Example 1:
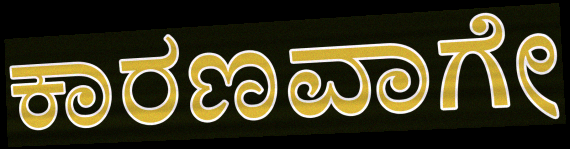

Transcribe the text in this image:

ಕಾರಣವಾಗೇ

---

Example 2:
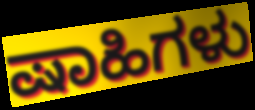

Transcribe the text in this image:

ಷಾಹಿಗಳು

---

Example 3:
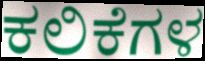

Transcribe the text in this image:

ಕಲಿಕೆಗಳ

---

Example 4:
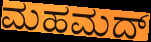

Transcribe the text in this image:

ಮಹಮದ್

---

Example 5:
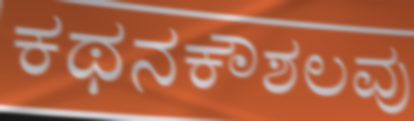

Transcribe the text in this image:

ಕಥನಕೌಶಲವು